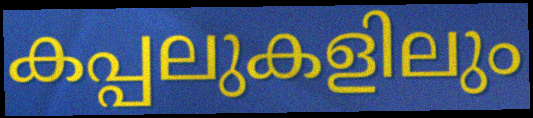
കപ്പലുകളിലും